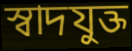
স্বাদযুক্ত